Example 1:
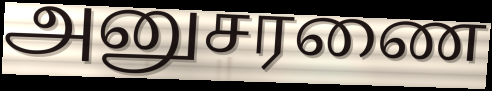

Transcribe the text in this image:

அனுசரணை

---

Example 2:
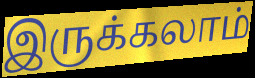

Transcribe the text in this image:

இருக்கலாம்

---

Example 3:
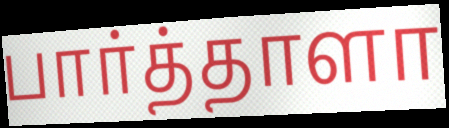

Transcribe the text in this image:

பார்த்தாளா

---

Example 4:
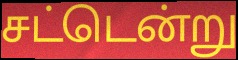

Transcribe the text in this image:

சட்டென்று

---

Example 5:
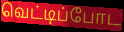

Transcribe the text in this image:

வெட்டிப்போட